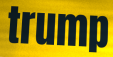
trump